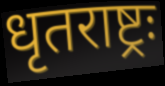
धृतराष्ट्रः